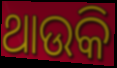
ଥାଉକି